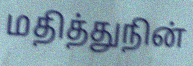
மதித்துநின்